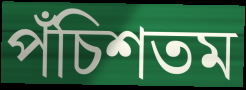
পঁচিশতম